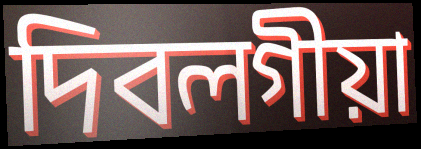
দিবলগীয়া